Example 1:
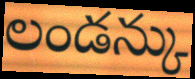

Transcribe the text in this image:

లండన్కు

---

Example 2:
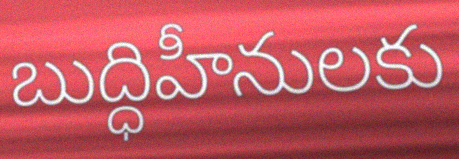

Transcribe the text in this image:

బుద్ధిహీనులకు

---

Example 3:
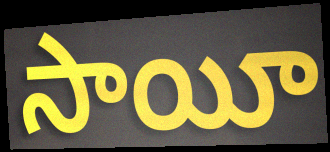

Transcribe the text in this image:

సాయీ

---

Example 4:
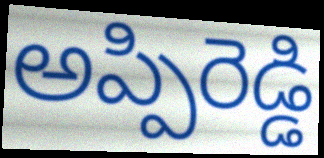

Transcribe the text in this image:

అప్పిరెడ్డి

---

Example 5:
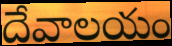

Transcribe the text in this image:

దేవాలయం